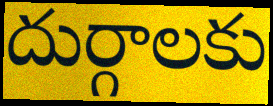
దుర్గాలకు